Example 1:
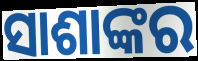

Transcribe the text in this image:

ସାଶାଙ୍କର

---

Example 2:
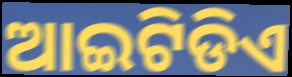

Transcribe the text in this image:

ଆଇଟିଡିଏ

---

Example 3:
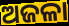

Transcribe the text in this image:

ଅଜଳା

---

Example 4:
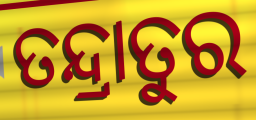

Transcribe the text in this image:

ତନ୍ଦ୍ରାତୁର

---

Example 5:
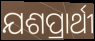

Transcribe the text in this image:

ଯଶପ୍ରାର୍ଥୀ